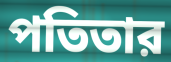
পতিতার